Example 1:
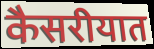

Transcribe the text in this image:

कैसरीयात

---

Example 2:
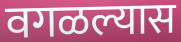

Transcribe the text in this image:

वगळल्यास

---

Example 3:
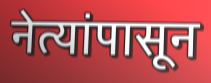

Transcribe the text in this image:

नेत्यांपासून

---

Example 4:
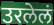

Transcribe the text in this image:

उरलेलं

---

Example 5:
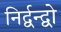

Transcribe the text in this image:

निर्द्वन्द्वो